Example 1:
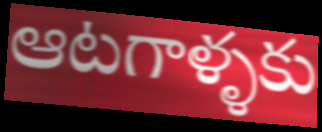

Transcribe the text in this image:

ఆటగాళ్ళకు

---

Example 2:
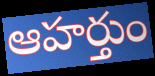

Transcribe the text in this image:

ఆహర్తుం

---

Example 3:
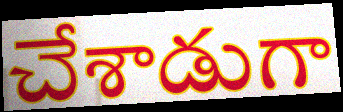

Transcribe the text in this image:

చేశాడుగా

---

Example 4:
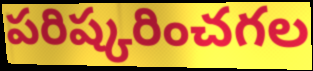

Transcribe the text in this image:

పరిష్కరించగల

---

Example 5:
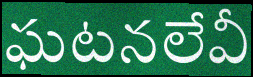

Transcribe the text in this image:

ఘటనలేవీ